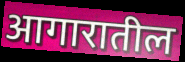
आगारातील